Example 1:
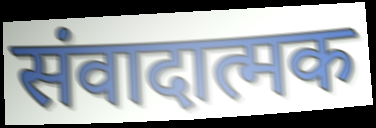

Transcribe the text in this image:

संवादात्मक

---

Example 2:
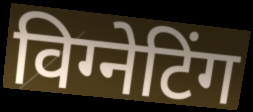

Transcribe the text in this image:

विग्नेटिंग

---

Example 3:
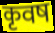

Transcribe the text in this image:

कृवष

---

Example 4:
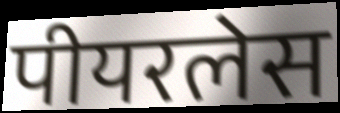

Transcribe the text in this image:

पीयरलेस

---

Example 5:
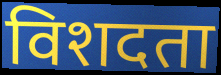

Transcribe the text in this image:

विशदता